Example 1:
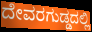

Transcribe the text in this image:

ದೇವರಗುಡ್ಡದಲ್ಲಿ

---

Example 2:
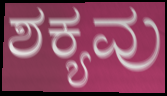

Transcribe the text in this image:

ಶಕ್ಯವು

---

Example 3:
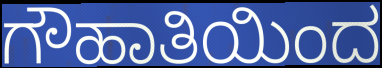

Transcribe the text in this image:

ಗೌಹಾತಿಯಿಂದ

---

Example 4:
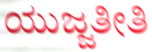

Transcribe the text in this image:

ಯುಜ್ಜತೀತಿ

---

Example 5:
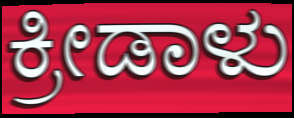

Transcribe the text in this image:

ಕ್ರೀಡಾಳು